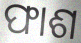
ଫାଶ